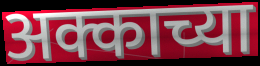
अक्काच्या